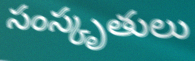
సంస్కృతులు